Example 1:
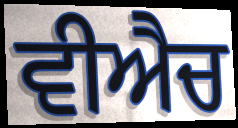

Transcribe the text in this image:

ਵੀਐਚ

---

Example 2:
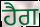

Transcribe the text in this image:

ਹੈਗ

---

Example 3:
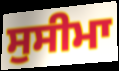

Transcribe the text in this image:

ਸੁਸੀਮਾ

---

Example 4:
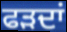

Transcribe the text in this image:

ਫੜਦਾਂ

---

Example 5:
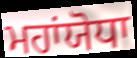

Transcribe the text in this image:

ਮਹਾਂਯੋਧਾ